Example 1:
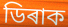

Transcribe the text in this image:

ডিৰাক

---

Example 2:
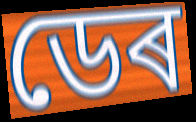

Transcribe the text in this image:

ডেৰ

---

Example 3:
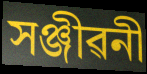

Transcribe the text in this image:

সঞ্জীৱনী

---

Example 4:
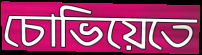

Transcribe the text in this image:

চোভিয়েতে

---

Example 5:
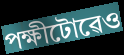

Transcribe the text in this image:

পক্ষীটোৱেও